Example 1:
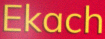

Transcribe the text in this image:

Ekach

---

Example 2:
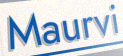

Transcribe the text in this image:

Maurvi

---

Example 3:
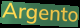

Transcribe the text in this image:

Argento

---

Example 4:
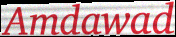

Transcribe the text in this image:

Amdawad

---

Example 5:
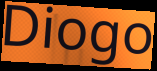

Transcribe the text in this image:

Diogo